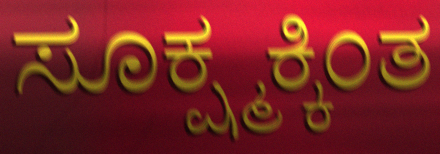
ಸೂಕ್ಷ್ಮಕ್ಕಿಂತ